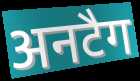
अनटैग